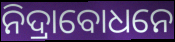
ନିଦ୍ରାବୋଧନେ